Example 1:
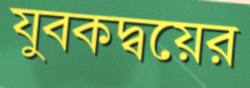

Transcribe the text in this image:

যুবকদ্বয়ের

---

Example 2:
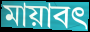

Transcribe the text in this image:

মায়াবৎ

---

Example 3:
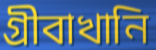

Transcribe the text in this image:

গ্রীবাখানি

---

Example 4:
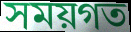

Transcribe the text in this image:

সময়গত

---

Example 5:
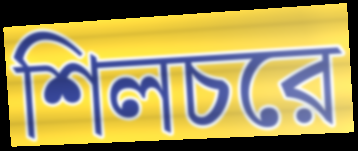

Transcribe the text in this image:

শিলচরে